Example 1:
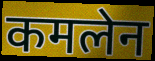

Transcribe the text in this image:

कमलेन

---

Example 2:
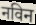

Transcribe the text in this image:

नविन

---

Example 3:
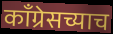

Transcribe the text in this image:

काँग्रेसच्याच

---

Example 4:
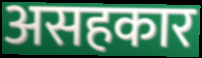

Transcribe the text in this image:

असहकार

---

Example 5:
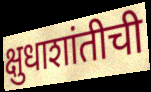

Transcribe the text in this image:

क्षुधाशांतीची